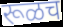
रूळच